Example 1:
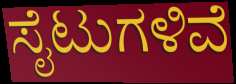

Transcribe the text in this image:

ಸೈಟುಗಳಿವೆ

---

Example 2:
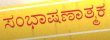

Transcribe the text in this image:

ಸಂಭಾಷಣಾತ್ಮಕ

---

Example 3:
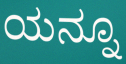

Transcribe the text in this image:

ಯನ್ನೂ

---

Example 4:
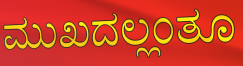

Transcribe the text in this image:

ಮುಖದಲ್ಲಂತೂ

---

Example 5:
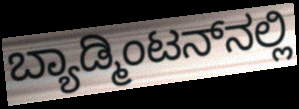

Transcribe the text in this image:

ಬ್ಯಾಡ್ಮಿಂಟನ್‌ನಲ್ಲಿ